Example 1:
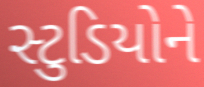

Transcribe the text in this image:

સ્ટુડિયોને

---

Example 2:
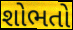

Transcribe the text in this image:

શોભતો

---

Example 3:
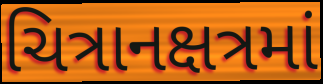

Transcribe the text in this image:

ચિત્રાનક્ષત્રમાં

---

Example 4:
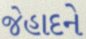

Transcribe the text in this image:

જેહાદને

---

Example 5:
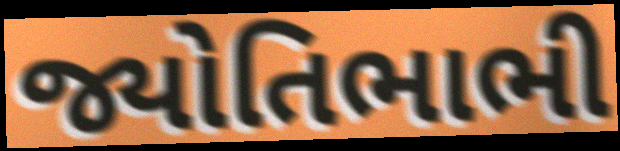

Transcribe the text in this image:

જ્યોતિભાભી